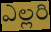
ఎల్లరి